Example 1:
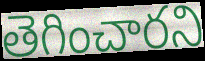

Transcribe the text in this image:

తెగించారని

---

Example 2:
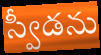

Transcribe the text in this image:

స్వీడను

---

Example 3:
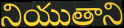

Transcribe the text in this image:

నియుతాని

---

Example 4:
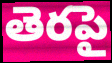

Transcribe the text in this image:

తెరపై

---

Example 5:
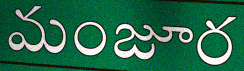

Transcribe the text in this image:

మంజూర